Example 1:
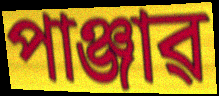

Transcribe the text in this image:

পাঞ্জাৱ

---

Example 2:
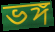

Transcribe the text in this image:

ভঙ্গ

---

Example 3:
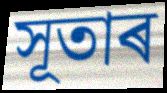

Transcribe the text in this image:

সূতাৰ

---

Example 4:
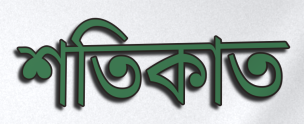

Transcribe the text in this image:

শতিকাত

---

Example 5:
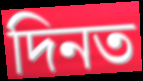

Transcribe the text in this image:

দিনত